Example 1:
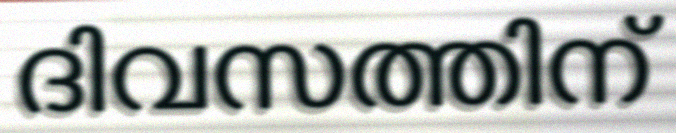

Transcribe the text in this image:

ദിവസത്തിന്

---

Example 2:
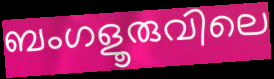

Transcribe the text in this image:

ബംഗളൂരുവിലെ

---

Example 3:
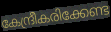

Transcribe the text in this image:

കേന്ദ്രീകരിക്കേണ്ട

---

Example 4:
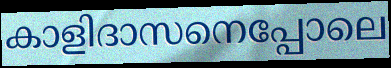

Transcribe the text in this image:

കാളിദാസനെപ്പോലെ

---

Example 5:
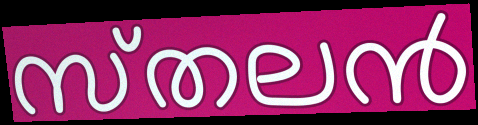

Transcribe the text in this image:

സ്‌തലൻ